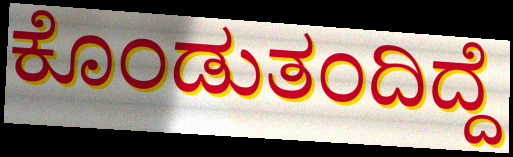
ಕೊಂಡುತಂದಿದ್ದೆ